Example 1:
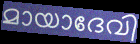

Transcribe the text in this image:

മായാദേവി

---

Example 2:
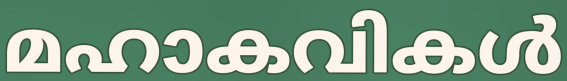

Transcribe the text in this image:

മഹാകവികൾ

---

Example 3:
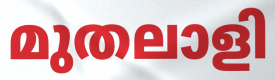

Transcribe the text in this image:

മുതലാളി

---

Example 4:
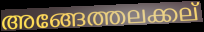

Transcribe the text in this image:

അങ്ങേത്തലക്കല്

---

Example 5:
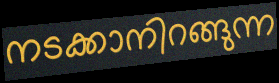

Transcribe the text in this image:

നടക്കാനിറങ്ങുന്ന